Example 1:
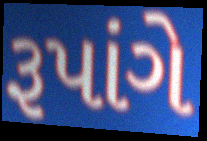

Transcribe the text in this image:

રૂપાંગે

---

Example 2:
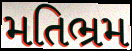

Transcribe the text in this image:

મતિભ્રમ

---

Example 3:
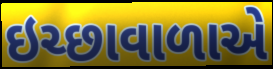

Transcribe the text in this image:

ઇચ્છાવાળાએ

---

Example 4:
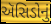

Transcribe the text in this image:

ઍસિડોનું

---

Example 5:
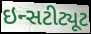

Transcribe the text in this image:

ઇન્સટીટ્યૂટ